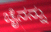
ಚೈನನ್ನು